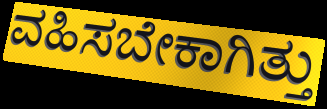
ವಹಿಸಬೇಕಾಗಿತ್ತು